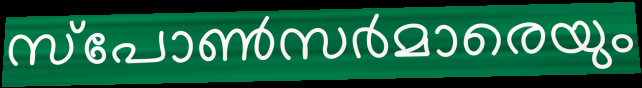
സ്പോൺസർമാരെയും